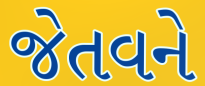
જેતવને